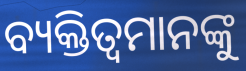
ବ୍ୟକ୍ତିତ୍ବମାନଙ୍କୁ